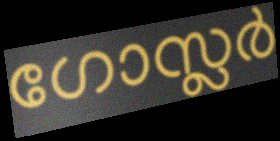
ഗോസ്ലർ